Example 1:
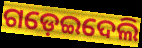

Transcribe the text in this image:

ଗଡ଼େଇଦେଲି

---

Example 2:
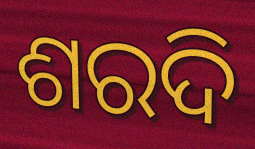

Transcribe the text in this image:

ଶରଦି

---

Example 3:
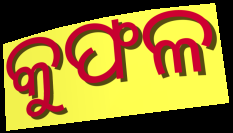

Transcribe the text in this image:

କୁଫଳ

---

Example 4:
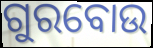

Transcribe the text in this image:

ଗୁରବୋଉ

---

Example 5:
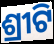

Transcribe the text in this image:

ଶ୍ରୀଟି